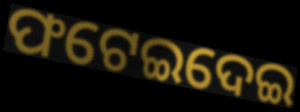
ଫଟେଇଦେଇ